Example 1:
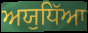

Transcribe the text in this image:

ਅਯੁਧਿੱਆ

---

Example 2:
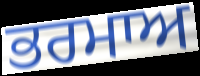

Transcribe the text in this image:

ਭਰਮਾਅ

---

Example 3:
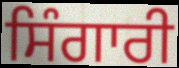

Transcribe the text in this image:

ਸਿੰਗਾਰੀ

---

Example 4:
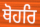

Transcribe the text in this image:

ਥੋਹਰਿ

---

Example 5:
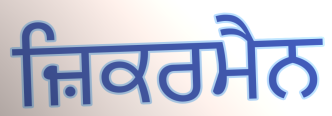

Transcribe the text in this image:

ਜ਼ਿਕਰਮੈਨ